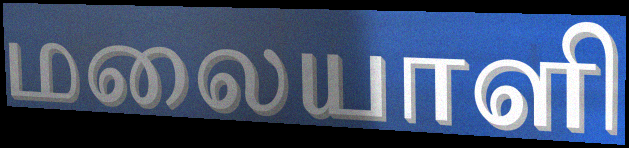
மலையாளி